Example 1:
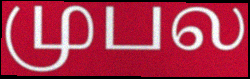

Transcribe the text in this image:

முபல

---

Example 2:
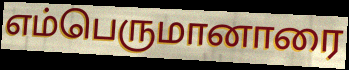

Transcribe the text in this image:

எம்பெருமானாரை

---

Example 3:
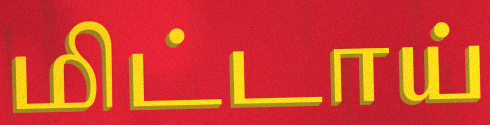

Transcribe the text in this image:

மிட்டாய்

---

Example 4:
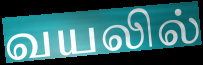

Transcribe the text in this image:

வயலில்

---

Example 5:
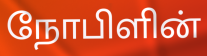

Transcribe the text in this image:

நோபிளின்